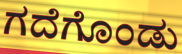
ಗದೆಗೊಂಡು